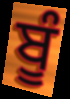
ਬੂੰ